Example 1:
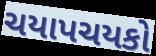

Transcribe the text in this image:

ચયાપચયકો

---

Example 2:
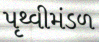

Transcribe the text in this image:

પૃથ્વીમંડળ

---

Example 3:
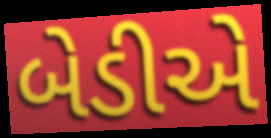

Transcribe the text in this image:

બેડીએ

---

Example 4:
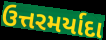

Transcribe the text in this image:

ઉત્તરમર્યાદા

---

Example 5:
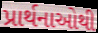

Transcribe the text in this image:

પ્રાર્થનાઓથી